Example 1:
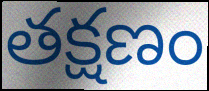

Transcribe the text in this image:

తక్షణం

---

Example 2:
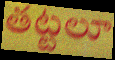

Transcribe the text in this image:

తట్టలూ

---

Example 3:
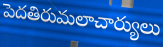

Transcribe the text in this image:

పెదతిరుమలాచార్యులు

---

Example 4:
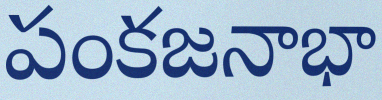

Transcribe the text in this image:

పంకజనాభా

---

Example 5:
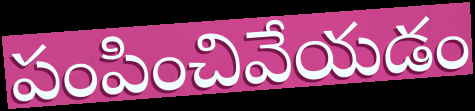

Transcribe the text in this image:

పంపించివేయడం